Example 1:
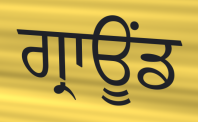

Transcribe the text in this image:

ਗ੍ਰਾਊਂਡ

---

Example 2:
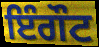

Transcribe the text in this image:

ਇੰਗੌਟ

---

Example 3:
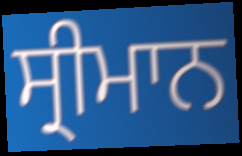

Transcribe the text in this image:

ਸ੍ਰੀਮਾਨ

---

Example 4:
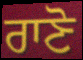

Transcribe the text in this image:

ਰਾਣੋ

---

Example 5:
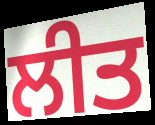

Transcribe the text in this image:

ਲੀਤ